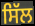
ਸਿੱਲ